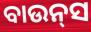
ବାଉନ୍‌ସ